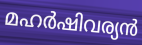
മഹർഷിവര്യൻ